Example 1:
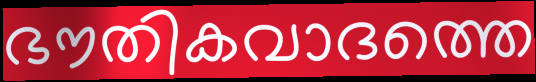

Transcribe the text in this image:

ഭൗതികവാദത്തെ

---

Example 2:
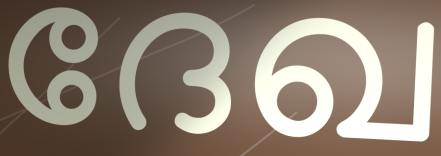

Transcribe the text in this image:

ദേഖ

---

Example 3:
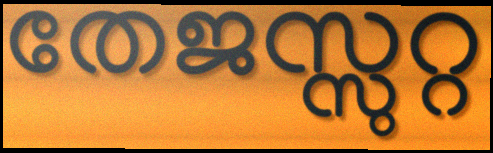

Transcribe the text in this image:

തേജസ്സുറ്റ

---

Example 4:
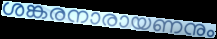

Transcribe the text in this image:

ശങ്കരനാരായണനും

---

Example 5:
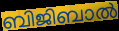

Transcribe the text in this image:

ബിജിബാൽ